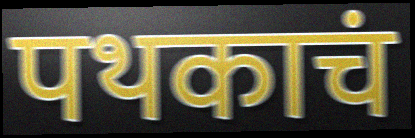
पथकाचं